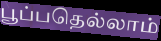
பூப்பதெல்லாம்